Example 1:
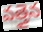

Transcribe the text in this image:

వత్తైన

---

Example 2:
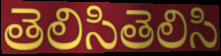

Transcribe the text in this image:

తెలిసితెలిసి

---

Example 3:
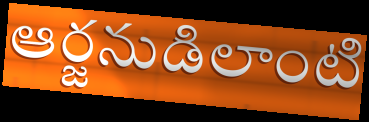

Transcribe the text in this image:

ఆర్జనుడిలాంటి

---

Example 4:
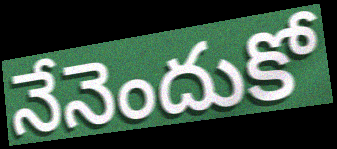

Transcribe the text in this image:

నేనెందుకో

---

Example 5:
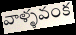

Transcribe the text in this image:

వాళ్ళవంక